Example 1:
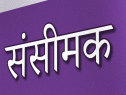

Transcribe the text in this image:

संसीमक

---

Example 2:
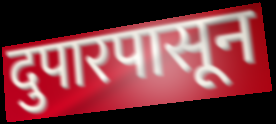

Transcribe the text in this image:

दुपारपासून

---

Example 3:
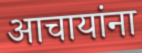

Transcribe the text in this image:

आचायांना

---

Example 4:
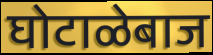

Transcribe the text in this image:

घोटाळेबाज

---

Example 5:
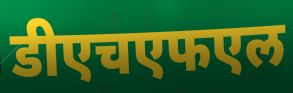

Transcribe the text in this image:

डीएचएफएल